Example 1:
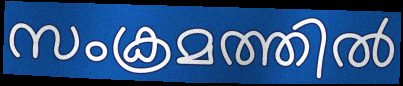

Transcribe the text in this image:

സംക്രമത്തിൽ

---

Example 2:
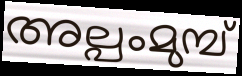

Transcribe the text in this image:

അല്പംമുമ്പ്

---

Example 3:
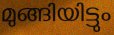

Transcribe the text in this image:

മുങ്ങിയിട്ടും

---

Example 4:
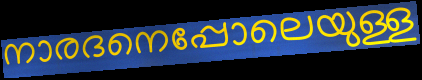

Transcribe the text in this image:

നാരദനെപ്പോലെയുള്ള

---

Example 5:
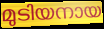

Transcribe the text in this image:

മുടിയനായ